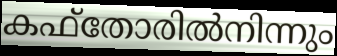
കഫ്തോരിൽനിന്നും